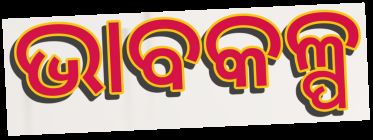
ଭାବକଳ୍ପ